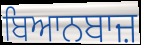
ਬਿਆਨਬਾਜ਼